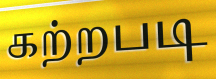
கற்றபடி